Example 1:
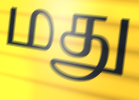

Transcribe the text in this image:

மது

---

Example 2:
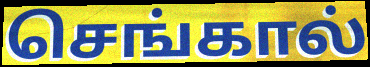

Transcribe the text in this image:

செங்கால்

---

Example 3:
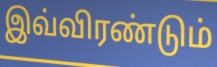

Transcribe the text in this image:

இவ்விரண்டும்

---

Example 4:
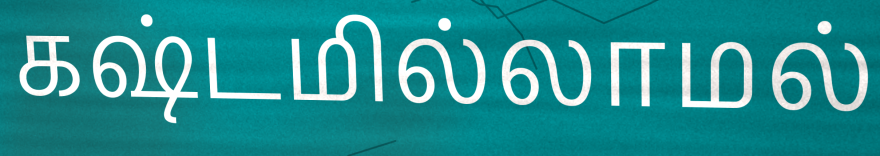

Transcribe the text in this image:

கஷ்டமில்லாமல்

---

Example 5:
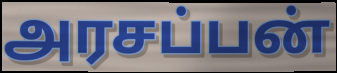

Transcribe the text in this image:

அரசப்பன்